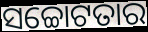
ସଚ୍ଚୋଟତାର